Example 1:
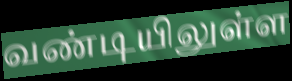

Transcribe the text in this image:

வண்டியிலுள்ள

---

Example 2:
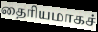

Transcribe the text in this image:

தைரியமாகச்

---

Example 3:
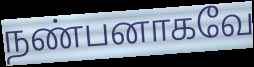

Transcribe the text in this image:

நண்பனாகவே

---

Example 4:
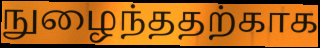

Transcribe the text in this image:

நுழைந்ததற்காக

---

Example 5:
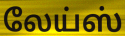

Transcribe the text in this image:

லேய்ஸ்